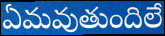
ఏమవుతుందిలే